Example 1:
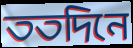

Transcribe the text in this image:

ততদিনে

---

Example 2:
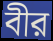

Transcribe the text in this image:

বীর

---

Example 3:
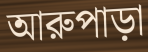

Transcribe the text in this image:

আরুপাড়া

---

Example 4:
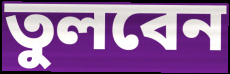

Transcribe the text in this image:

তুলবেন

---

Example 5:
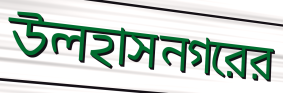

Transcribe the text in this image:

উলহাসনগরের